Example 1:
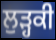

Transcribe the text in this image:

ਲੁੜ੍ਹਕੀ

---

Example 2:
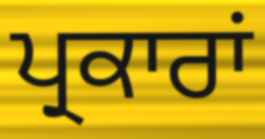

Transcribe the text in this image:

ਪ੍ਰਕਾਰਾਂ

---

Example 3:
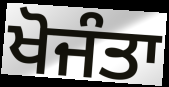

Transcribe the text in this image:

ਖੋਜੰਤਾ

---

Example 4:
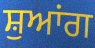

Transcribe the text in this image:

ਸ਼ੁਆਂਗ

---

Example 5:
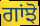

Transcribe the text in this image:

ਗਾਂਝੋ